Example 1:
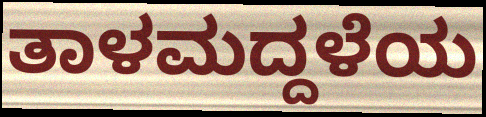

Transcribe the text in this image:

ತಾಳಮದ್ದಳೆಯ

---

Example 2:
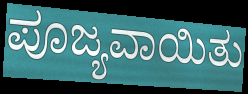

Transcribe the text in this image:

ಪೂಜ್ಯವಾಯಿತು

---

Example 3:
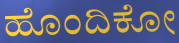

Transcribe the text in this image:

ಹೊಂದಿಕೋ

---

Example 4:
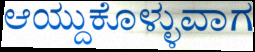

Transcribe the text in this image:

ಆಯ್ದುಕೊಳ್ಳುವಾಗ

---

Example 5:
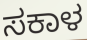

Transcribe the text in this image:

ಸಕಾಳ